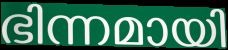
ഭിന്നമായി